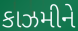
કાઝમીને